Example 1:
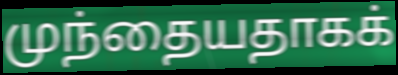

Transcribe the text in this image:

முந்தையதாகக்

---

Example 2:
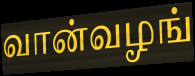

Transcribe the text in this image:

வான்வழங்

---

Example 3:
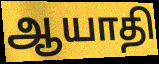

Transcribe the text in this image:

ஆயாதி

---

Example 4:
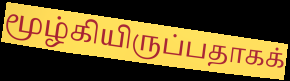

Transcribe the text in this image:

மூழ்கியிருப்பதாகக்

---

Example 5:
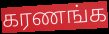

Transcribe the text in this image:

கரணங்க